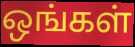
ஒங்கள்